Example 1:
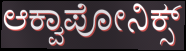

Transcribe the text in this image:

ಆಕ್ವಾಪೋನಿಕ್ಸ್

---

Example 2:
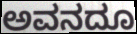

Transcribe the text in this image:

ಅವನದೂ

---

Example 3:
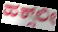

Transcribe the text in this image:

ಹಕ್ಸ್‌ಲೀ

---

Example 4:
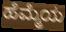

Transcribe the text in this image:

ಹೆಮ್ಮೆಯ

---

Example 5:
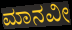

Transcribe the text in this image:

ಮಾನವೀ